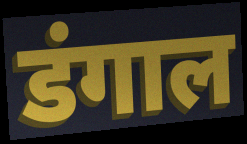
डंगाल